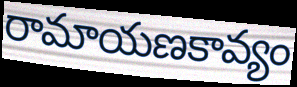
రామాయణకావ్యం